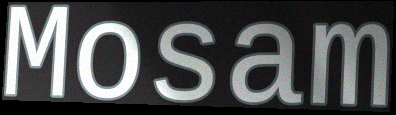
Mosam